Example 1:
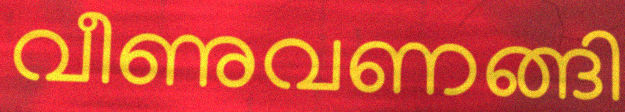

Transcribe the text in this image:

വീണുവണങ്ങി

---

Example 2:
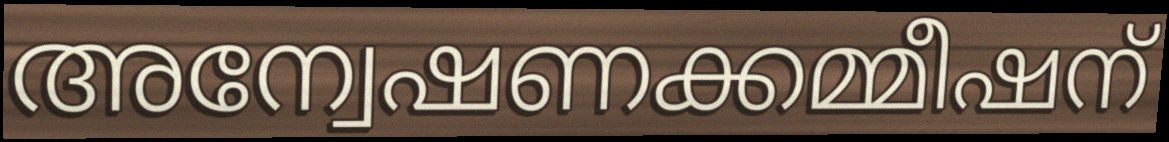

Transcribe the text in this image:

അന്വേഷണക്കമ്മീഷന്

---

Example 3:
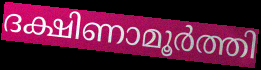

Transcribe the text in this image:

ദക്ഷിണാമൂർത്തി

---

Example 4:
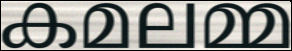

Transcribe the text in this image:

കമലമ്മ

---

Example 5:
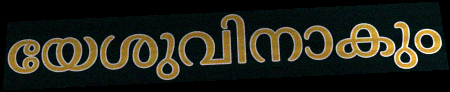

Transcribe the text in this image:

യേശുവിനാകും